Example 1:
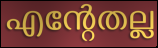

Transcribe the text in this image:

എന്റേതല്ല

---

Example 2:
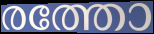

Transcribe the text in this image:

രത്തോ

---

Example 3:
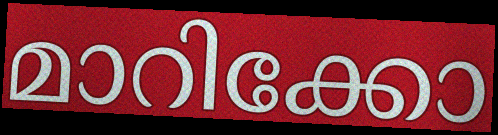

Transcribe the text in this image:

മാറിക്കോ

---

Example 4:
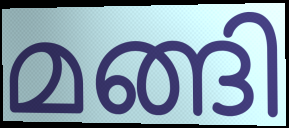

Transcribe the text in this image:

മങ്ങി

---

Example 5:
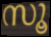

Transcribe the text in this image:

സൂ